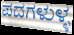
ಪದಗಳುಳ್ಳ